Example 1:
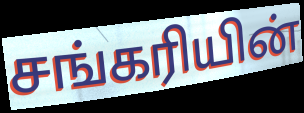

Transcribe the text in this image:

சங்கரியின்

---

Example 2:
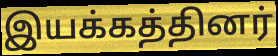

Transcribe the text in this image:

இயக்கத்தினர்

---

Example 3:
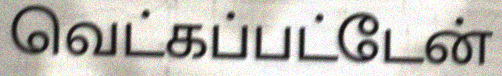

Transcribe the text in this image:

வெட்கப்பட்டேன்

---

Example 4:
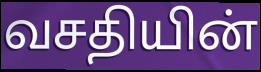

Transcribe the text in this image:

வசதியின்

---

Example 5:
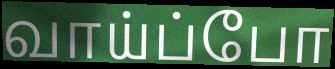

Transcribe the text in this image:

வாய்ப்போ